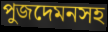
পুজদেমনসহ